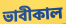
ভাবীকাল